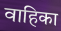
वाहिका